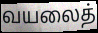
வயலைத்